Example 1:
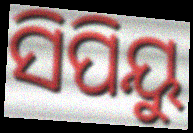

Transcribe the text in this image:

ସିପିୟୁ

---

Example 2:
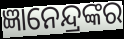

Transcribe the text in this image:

ଜ୍ଞାନେନ୍ଦ୍ରଙ୍କର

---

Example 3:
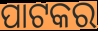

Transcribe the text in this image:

ପାଟକର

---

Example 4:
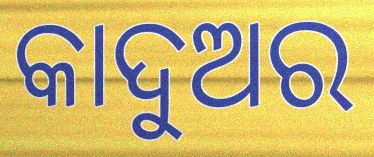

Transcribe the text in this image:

କାଦୁଅର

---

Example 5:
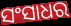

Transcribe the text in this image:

ସଂସାଧର